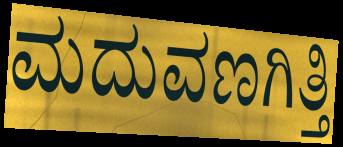
ಮದುವಣಗಿತ್ತಿ